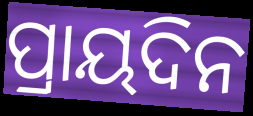
ପ୍ରାୟଦିନ